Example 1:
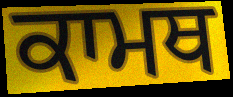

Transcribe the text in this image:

ਕਾਮਥ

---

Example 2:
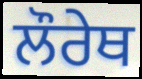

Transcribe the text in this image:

ਲੌਰੇਥ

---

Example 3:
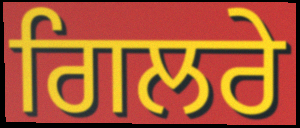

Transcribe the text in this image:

ਗਿਲਰੇ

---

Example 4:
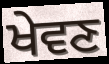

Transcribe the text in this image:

ਖੇਵਣ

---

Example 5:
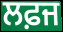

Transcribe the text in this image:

ਲਫ਼ਜ